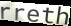
rreth